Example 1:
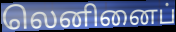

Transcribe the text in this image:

லெனினைப்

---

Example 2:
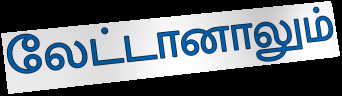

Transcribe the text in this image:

லேட்டானாலும்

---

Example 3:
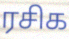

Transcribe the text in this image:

ரசிக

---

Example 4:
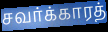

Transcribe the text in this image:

சவர்க்காரத்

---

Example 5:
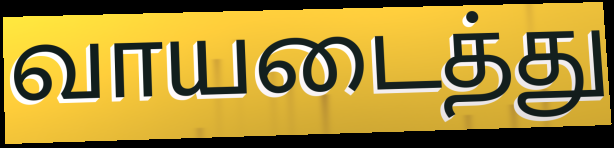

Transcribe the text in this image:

வாயடைத்து